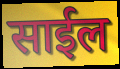
साईल